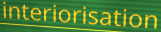
interiorisation